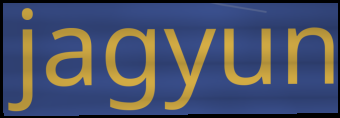
jagyun